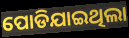
ପୋଡିଯାଇଥିଲା